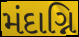
મંદાગ્નિ